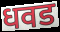
धवड